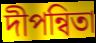
দীপন্বিতা